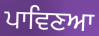
ਪਾਵਿਣਆ